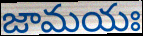
జామయః